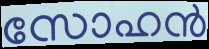
സോഹൻ